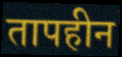
तापहीन